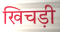
खिचड़ी